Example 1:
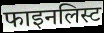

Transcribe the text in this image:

फाइनलिस्ट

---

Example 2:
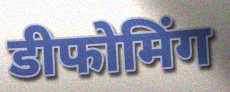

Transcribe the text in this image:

डीफोमिंग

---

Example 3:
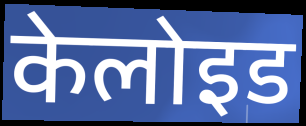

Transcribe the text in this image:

केलोइड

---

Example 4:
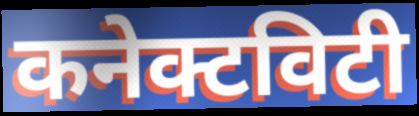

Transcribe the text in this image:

कनेक्टविटी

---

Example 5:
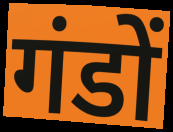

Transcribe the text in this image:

गंडों